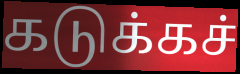
கடுக்கச்